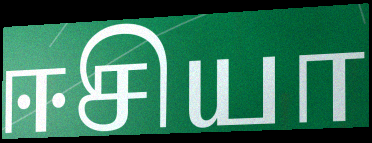
ஈசியா